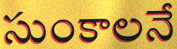
సుంకాలనే